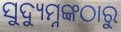
ସୁଦ୍ୟୁମ୍ନଙ୍କଠାରୁ